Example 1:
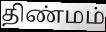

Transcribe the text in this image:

திண்மம்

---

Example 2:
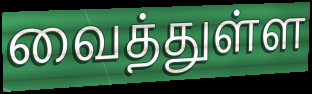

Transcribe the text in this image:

வைத்துள்ள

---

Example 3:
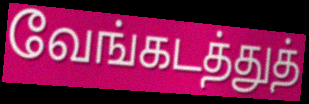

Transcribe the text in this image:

வேங்கடத்துத்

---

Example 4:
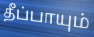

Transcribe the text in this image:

தீப்பாயும்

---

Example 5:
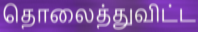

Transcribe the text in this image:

தொலைத்துவிட்ட